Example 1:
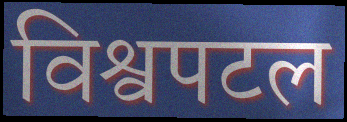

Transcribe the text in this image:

विश्वपटल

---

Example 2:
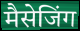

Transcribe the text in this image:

मैसेजिंग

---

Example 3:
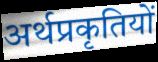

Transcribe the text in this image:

अर्थप्रकृतियों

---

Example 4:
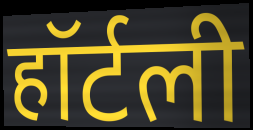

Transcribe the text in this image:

हॉर्टली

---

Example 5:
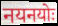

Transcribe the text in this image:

नयनयोः